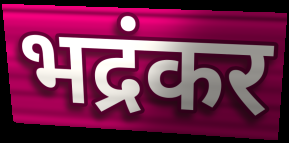
भद्रंकर